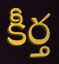
కీర్త